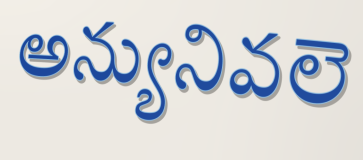
అన్యునివలె